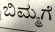
ಬಿಮ್ಮಗೆ